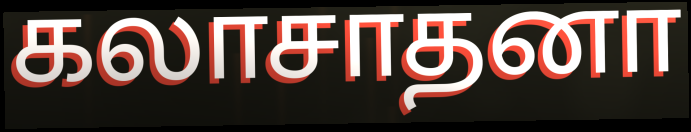
கலாசாதனா